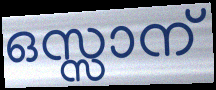
ഒസ്സാന്